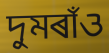
দুমৰাঁও